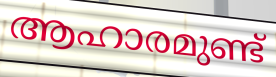
ആഹാരമുണ്ട്